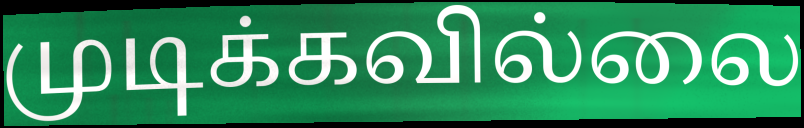
முடிக்கவில்லை